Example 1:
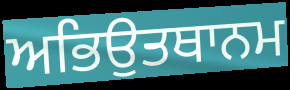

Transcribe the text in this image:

ਅਭਿਉਤਥਾਨਮ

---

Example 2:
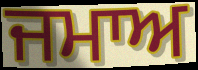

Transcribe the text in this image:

ਜਮਾਅ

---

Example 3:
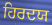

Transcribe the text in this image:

ਹਿਰਦਯ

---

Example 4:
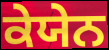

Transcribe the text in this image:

ਕੇਯੇਨ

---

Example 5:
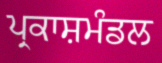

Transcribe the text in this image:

ਪ੍ਰਕਾਸ਼ਮੰਡਲ